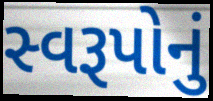
સ્વરૂપોનું